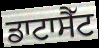
ਡਾਟਾਸੈੱਟ